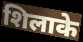
शिलाके